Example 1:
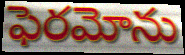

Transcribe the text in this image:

ఫెరమోను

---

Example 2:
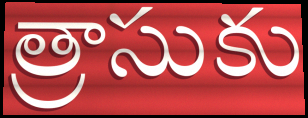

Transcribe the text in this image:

త్రాసుకు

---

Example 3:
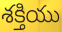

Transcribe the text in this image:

శక్తియు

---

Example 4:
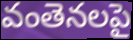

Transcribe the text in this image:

వంతెనలపై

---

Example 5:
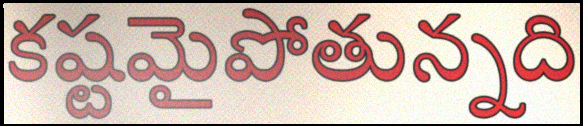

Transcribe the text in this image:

కష్టమైపోతున్నది